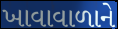
ખાવાવાળાને